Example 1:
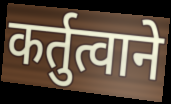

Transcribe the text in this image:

कर्तुत्वाने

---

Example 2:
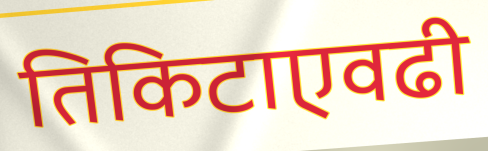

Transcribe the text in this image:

तिकिटाएवढी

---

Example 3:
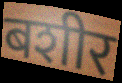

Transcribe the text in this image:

बशीर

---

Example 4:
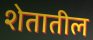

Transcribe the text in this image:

शेतातील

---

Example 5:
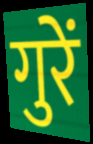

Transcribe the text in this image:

गुरें